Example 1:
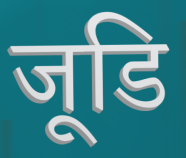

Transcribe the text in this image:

जूडि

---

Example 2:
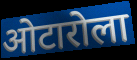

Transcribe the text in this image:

ओटारोला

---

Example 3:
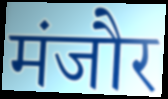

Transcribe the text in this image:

मंजौर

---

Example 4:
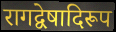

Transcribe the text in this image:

रागद्वेषादिरूप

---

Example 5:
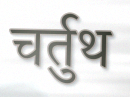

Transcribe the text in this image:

चर्तुथ